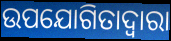
ଉପଯୋଗିତାଦ୍ୱାରା